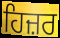
ਹਿਜ਼ਰ